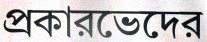
প্রকারভেদের